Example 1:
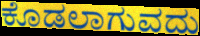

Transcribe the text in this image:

ಕೊಡಲಾಗುವದು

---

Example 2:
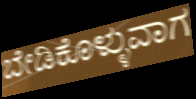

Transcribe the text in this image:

ಬೇಡಿಕೊಳ್ಳುವಾಗ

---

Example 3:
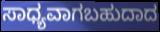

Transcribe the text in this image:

ಸಾಧ್ಯವಾಗಬಹುದಾದ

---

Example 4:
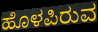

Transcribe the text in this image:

ಹೊಳಪಿರುವ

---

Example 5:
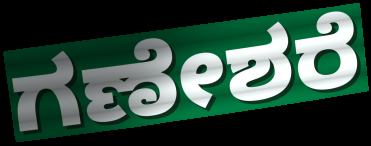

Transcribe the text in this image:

ಗಣೇಶರೆ